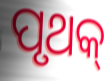
ପୃଥକ୍